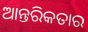
ଆନ୍ତରିକତାର